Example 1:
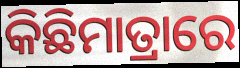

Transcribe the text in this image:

କିଛିମାତ୍ରାରେ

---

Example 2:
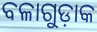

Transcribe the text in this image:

ବଳାଗୁଡ଼ାକ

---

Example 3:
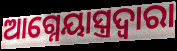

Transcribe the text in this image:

ଆଗ୍ନେୟାସ୍ତ୍ରଦ୍ୱାରା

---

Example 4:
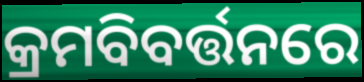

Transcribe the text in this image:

କ୍ରମବିବର୍ତ୍ତନରେ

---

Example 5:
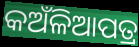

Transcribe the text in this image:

କଅଁଳିଆପତ୍ର